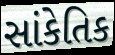
સાંકેતિક